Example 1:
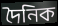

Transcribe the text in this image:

দৈনিক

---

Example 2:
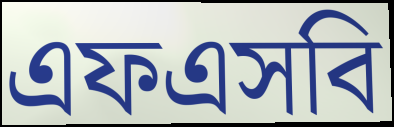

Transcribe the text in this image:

এফএসবি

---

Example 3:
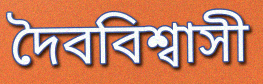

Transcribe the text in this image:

দৈববিশ্বাসী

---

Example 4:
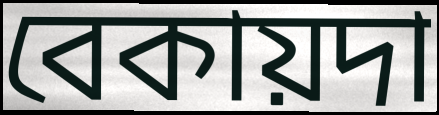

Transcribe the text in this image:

বেকায়দা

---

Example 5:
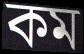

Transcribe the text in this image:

কম